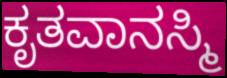
ಕೃತವಾನಸ್ಮಿ